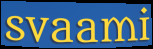
svaami